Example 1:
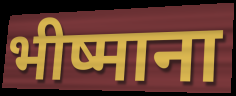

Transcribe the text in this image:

भीष्माना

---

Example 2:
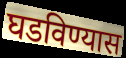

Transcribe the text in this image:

घडविण्यास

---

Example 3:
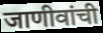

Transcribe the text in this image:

जाणीवांची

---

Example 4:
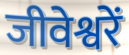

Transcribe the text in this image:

जीवेश्वरें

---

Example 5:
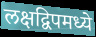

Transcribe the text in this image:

लक्षद्विपमध्ये